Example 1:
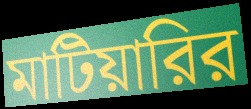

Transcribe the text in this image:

মাটিয়ারির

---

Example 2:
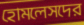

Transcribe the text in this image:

হোমলেসদের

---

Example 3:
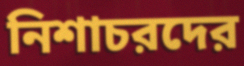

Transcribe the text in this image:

নিশাচরদের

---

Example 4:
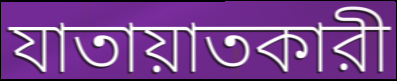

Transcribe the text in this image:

যাতায়াতকারী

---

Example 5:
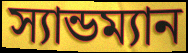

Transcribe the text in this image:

স্যান্ডম্যান